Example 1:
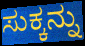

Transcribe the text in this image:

ಸುಕ್ಕನ್ನು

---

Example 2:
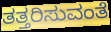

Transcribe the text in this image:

ತತ್ತರಿಸುವಂತೆ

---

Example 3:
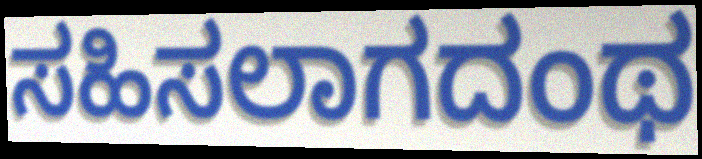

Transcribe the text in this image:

ಸಹಿಸಲಾಗದಂಥ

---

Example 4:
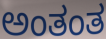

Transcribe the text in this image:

ಅಂತಂತ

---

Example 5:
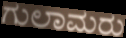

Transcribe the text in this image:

ಗುಲಾಮರು